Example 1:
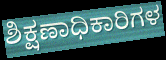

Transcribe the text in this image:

ಶಿಕ್ಷಣಾಧಿಕಾರಿಗಳ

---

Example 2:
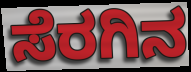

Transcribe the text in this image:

ಸೆರಗಿನ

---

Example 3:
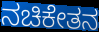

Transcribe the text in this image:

ನಚಿಕೇತನ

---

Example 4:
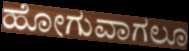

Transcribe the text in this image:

ಹೋಗುವಾಗಲೂ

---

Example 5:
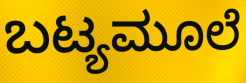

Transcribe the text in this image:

ಬಟ್ಯಮೂಲೆ